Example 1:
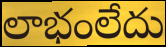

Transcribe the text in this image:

లాభంలేదు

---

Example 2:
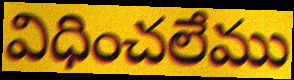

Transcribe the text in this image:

విధించలేము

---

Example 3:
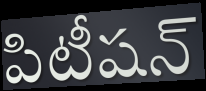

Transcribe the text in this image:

పిటీషన్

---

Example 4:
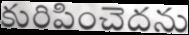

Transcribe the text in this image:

కురిపించెదను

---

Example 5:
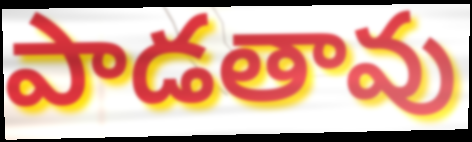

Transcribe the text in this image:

పాడతావు